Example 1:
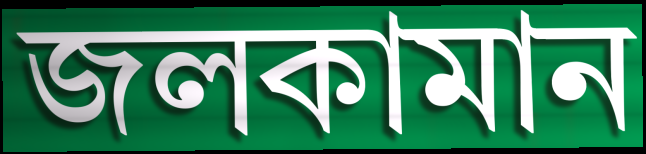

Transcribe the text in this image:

জলকামান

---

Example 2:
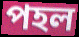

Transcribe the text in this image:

পহল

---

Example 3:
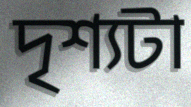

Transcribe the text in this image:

দৃশ্যটা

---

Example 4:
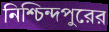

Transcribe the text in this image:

নিশ্চিন্দপুরের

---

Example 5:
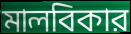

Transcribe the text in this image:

মালবিকার